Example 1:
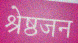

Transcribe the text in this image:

श्रेष्ठजन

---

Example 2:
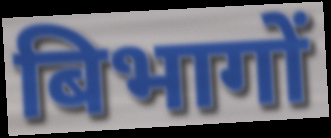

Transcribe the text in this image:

बिभागों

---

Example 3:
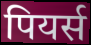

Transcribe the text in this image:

पियर्स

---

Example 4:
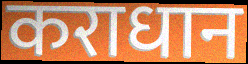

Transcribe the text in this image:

कराधान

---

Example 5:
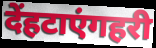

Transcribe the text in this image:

देंहटाएंगहरी